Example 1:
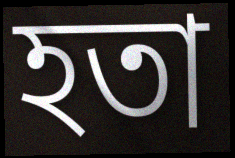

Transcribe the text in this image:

হতা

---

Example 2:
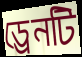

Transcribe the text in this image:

ড্রেনটি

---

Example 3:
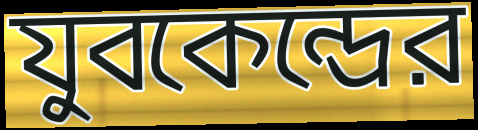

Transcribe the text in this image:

যুবকেন্দ্রের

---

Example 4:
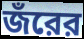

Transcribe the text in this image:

জঁরের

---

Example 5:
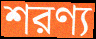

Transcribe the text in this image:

শরণ্য